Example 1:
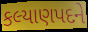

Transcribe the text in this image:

કલ્યાણપદને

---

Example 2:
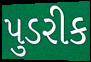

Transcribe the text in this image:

પુડરીક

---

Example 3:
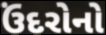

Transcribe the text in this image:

ઉંદરોનો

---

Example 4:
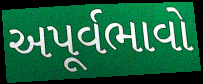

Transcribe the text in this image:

અપૂર્વભાવો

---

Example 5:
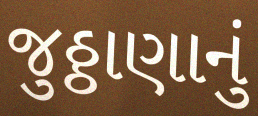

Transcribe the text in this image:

જુઠ્ઠાણાનું